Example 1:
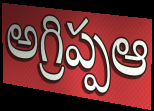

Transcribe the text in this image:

అగ్రిప్పఆ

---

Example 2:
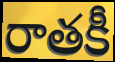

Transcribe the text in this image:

రాతకీ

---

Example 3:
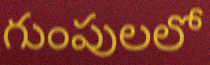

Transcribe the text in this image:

గుంపులలో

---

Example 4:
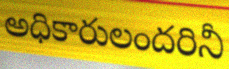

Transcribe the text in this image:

అధికారులందరినీ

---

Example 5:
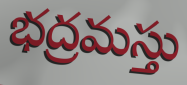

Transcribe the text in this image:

భద్రమస్తు